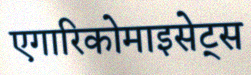
एगारिकोमाइसेट्स